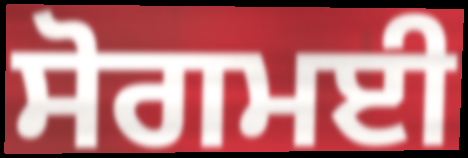
ਸੋਗਮਈ